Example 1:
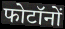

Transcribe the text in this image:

फोटॉनों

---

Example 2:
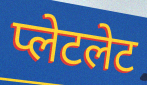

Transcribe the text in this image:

प्लेटलेट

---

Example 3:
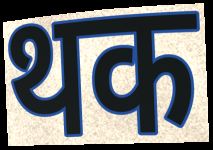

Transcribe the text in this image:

थक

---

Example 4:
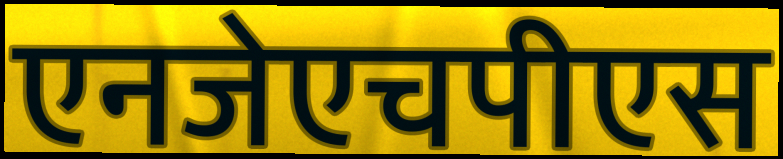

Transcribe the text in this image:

एनजेएचपीएस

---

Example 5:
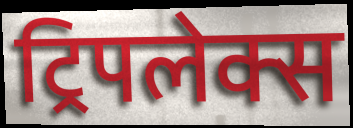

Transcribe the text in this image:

ट्रिपलेक्स